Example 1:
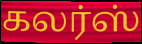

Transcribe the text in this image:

கலர்ஸ்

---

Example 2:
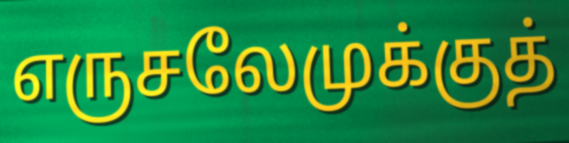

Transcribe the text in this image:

எருசலேமுக்குத்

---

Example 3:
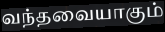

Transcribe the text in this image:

வந்தவையாகும்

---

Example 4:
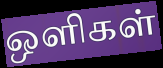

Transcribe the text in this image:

ஒளிகள்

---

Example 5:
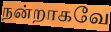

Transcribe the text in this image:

நன்றாகவே